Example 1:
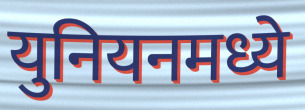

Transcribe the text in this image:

युनियनमध्ये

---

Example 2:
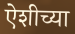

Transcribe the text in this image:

ऐशीच्या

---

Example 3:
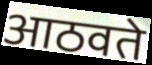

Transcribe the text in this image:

आठवते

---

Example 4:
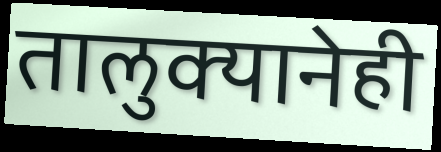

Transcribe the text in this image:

तालुक्यानेही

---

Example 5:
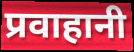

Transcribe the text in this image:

प्रवाहानी